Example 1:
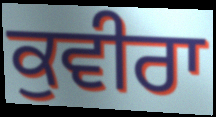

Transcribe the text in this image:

ਕੁਵੀਰਾ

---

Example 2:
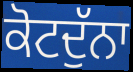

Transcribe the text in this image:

ਕੋਟਦੁੱਨਾ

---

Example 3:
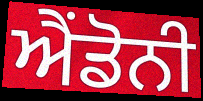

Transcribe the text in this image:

ਐਂਡੋਨੀ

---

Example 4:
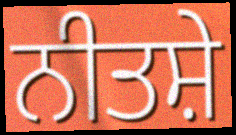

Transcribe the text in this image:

ਨੀਤਸ਼ੇ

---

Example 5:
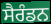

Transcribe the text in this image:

ਸੈਰੰਡਨ